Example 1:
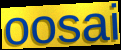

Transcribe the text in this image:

oosai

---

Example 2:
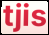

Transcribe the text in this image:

tjis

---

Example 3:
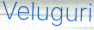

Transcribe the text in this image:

Veluguri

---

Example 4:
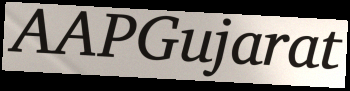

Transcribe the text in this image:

AAPGujarat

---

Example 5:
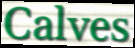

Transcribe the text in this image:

Calves